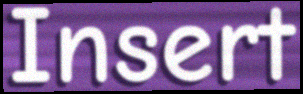
Insert